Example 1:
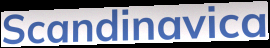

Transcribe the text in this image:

Scandinavica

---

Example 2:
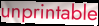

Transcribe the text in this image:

unprintable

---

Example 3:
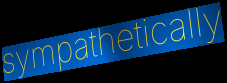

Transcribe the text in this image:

sympathetically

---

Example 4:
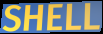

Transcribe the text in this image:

SHELL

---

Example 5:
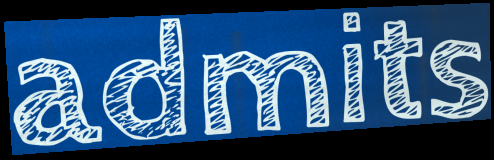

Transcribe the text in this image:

admits